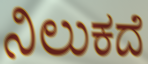
ನಿಲುಕದೆ